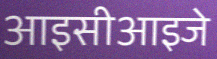
आइसीआइजे